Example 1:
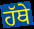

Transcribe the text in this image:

ਹੱਥੇ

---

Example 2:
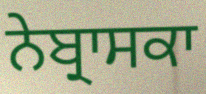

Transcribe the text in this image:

ਨੇਬ੍ਰਾਸਕਾ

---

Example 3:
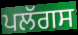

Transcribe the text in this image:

ਪਲੱਗਸ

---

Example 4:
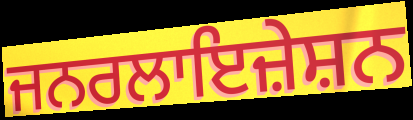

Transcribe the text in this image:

ਜਨਰਲਾਇਜ਼ੇਸ਼ਨ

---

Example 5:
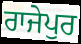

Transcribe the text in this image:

ਰਾਜੇਪੁਰ